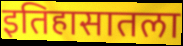
इतिहासातला